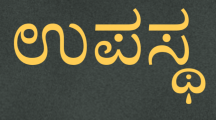
ಉಪಸ್ಥ